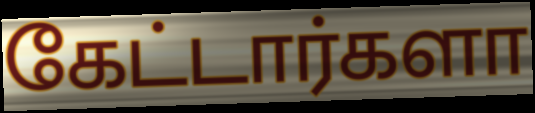
கேட்டார்களா